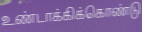
உண்டாக்கிக்கொண்டு